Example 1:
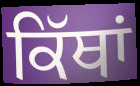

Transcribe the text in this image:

ਕਿੱਥਾਂ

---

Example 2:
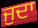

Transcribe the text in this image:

ਜੁਦਾ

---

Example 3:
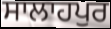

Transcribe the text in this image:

ਸਾਲਾਹਪੁਰ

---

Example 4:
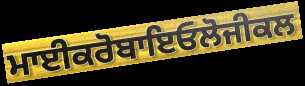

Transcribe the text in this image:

ਮਾਈਕਰੋਬਾਇਓਲੋਜੀਕਲ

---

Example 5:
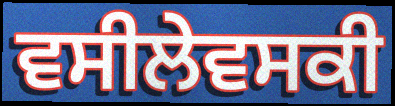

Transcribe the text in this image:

ਵਸੀਲੇਵਸਕੀ